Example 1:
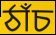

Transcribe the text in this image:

ঠাঁচ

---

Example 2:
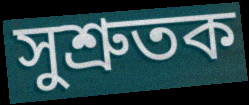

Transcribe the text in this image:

সুশ্ৰুতক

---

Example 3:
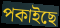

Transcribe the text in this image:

পকাইছে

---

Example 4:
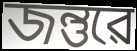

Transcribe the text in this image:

জন্তুৱে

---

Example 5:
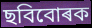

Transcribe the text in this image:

ছবিবোৰক